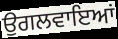
ਉਗਲਵਾਇਆਂ